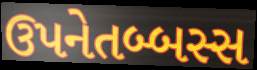
ઉપનેતબ્બસ્સ